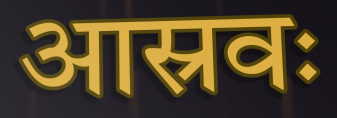
आस्रवः